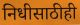
निधीसाठीही